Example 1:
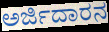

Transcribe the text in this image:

ಅರ್ಜಿದಾರನ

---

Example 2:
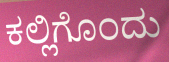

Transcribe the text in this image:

ಕಲ್ಲಿಗೊಂದು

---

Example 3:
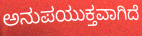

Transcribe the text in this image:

ಅನುಪಯುಕ್ತವಾಗಿದೆ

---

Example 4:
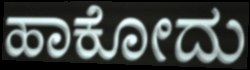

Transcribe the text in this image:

ಹಾಕೋದು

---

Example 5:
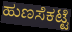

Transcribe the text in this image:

ಹುಣಸೆಕಟ್ಟೆ